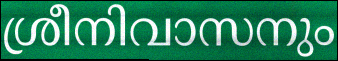
ശ്രീനിവാസനും